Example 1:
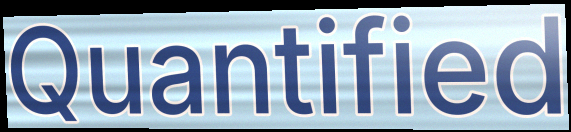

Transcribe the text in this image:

Quantified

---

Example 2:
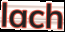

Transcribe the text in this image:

lach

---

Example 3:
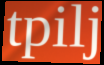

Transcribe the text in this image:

tpilj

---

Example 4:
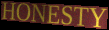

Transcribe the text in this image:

HONESTY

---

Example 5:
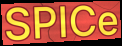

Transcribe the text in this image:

SPICe